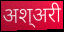
अश्अरी